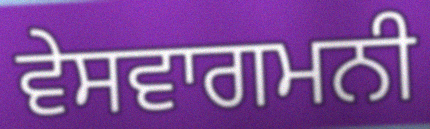
ਵੇਸਵਾਗਮਨੀ